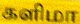
களிமா